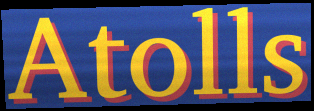
Atolls